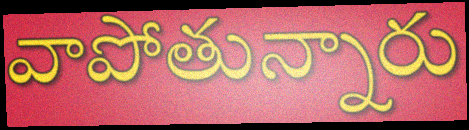
వాపోతున్నారు